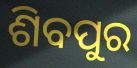
ଶିବପୁର